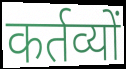
कर्तव्यों